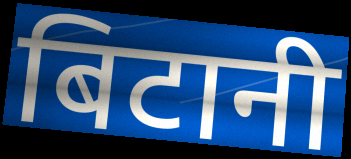
बिटानी